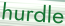
hurdle